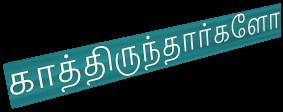
காத்திருந்தார்களோ